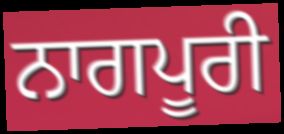
ਨਾਗਪੂਰੀ